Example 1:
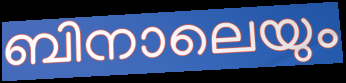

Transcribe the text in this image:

ബിനാലെയും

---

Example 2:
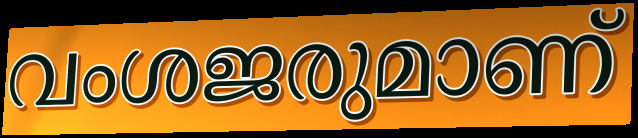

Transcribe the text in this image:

വംശജരുമാണ്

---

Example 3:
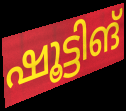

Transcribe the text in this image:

ഷൂട്ടിങ്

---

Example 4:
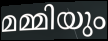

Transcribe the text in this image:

മമ്മിയും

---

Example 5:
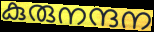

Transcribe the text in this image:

കുരുനന്ദന